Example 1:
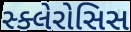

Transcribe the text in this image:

સ્ક્લેરોસિસ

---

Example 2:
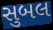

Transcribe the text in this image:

સુબલ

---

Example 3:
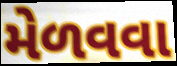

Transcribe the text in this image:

મેળવવા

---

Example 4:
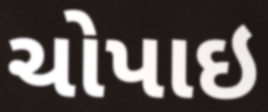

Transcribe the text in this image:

ચોપાઇ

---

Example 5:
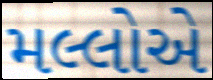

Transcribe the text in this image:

મલ્લોએ